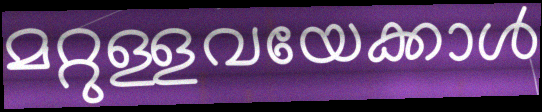
മറ്റുള്ളവയേക്കാൾ